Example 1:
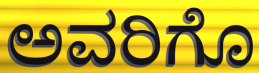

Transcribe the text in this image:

ಅವರಿಗೊ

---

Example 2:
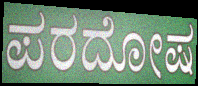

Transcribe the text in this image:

ಪರದೋಷ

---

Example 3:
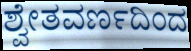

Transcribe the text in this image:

ಶ್ವೇತವರ್ಣದಿಂದ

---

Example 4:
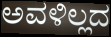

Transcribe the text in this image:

ಅವಳಿಲ್ಲದ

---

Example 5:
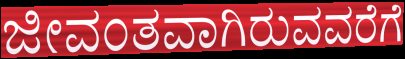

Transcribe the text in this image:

ಜೀವಂತವಾಗಿರುವವರೆಗೆ